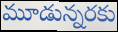
మూడున్నరకు